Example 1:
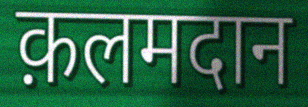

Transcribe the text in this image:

क़लमदान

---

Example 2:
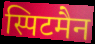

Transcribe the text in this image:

स्पिटमैन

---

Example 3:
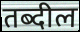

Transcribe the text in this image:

तब्दील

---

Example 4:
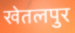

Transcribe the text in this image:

खेतलपुर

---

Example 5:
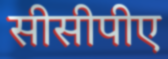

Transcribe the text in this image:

सीसीपीए